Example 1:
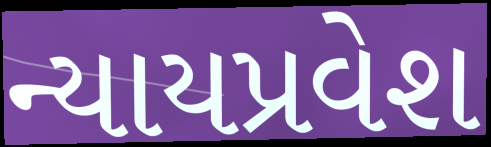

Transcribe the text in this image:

ન્યાયપ્રવેશ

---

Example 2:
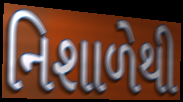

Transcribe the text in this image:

નિશાળેથી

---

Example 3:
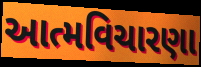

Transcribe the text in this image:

આત્મવિચારણા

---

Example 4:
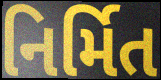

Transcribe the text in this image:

નિર્મિત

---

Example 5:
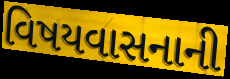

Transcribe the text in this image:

વિષયવાસનાની